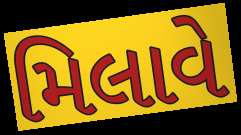
મિલાવે